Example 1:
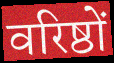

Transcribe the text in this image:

वरिष्ठों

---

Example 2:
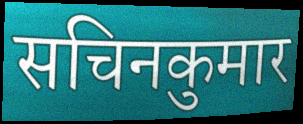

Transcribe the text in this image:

सचिनकुमार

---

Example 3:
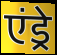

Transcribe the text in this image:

एंड्रे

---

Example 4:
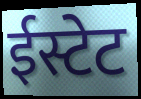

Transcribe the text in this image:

ईस्टेट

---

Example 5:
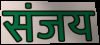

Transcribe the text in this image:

संजय